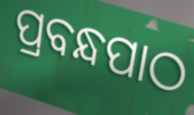
ପ୍ରବନ୍ଧପାଠ